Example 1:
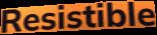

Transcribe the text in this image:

Resistible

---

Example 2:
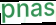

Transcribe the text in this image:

pnas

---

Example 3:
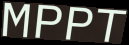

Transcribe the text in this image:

MPPT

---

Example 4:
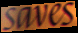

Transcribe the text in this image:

saves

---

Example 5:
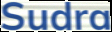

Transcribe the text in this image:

Sudra